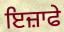
ਇਜ਼ਾਫੇ